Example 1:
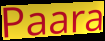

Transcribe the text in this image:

Paara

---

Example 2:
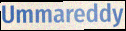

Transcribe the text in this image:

Ummareddy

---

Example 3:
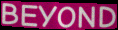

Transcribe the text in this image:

BEYOND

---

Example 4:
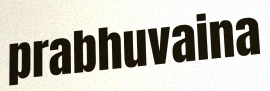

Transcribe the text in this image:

prabhuvaina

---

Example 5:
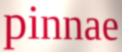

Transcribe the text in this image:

pinnae